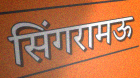
सिंगरामऊ